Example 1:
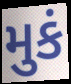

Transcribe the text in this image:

મુકં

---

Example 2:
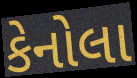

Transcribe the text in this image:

કેનોલા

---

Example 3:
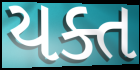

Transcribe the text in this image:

યક્ત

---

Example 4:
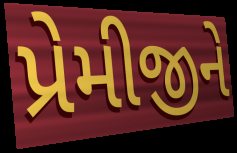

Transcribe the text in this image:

પ્રેમીજીને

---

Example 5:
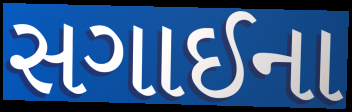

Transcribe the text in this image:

સગાઈના